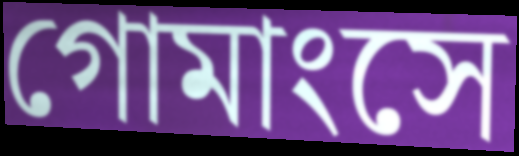
গোমাংসে